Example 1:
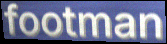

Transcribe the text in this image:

footman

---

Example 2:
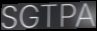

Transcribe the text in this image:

SGTPA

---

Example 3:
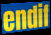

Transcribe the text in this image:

endif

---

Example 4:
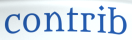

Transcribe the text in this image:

contrib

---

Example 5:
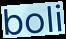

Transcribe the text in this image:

boli